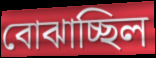
বোঝাচ্ছিল